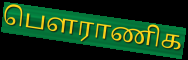
பௌராணிக